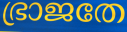
ഭ്രാജതേ